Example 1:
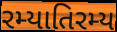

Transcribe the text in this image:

રમ્યાતિરમ્ય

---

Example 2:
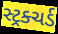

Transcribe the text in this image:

સ્ટ્રક્ચર્ડ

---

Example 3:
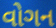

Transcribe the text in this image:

વોગન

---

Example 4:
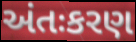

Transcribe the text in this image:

અંતઃકરણ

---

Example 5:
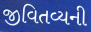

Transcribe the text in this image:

જીવિતવ્યની